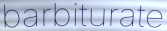
barbiturate